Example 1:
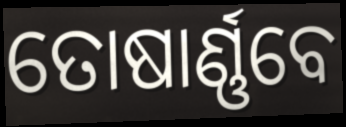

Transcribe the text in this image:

ତୋଷାର୍ଣ୍ଣବେ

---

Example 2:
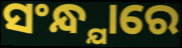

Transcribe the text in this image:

ସଂନ୍ଧ୍ଯାରେ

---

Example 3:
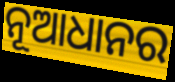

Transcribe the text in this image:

ନୂଆଧାନର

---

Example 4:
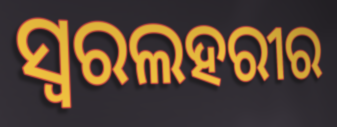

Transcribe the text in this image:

ସ୍ୱରଲହରୀର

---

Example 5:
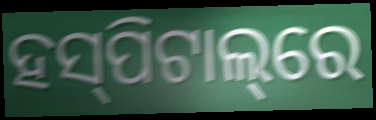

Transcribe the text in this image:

ହସ୍‌ପିଟାଲ୍‌ରେ